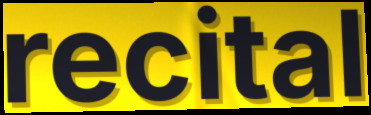
recital